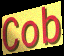
Cob